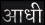
आधी